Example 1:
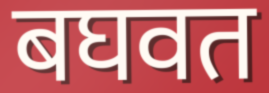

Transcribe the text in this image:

बघवत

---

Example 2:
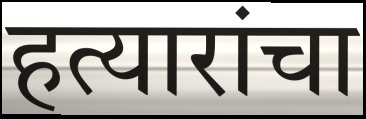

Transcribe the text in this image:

हत्यारांचा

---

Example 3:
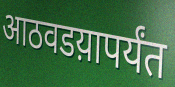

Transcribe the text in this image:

आठवडय़ापर्यंत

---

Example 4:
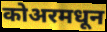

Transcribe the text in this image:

कोअरमधून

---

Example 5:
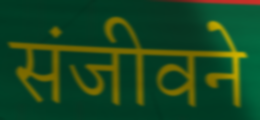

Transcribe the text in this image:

संजीवने